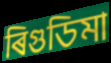
ৰিগুডিমা